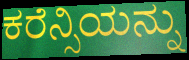
ಕರೆನ್ಸಿಯನ್ನು